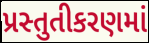
પ્રસ્તુતીકરણમાં